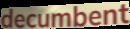
decumbent